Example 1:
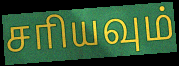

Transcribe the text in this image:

சரியவும்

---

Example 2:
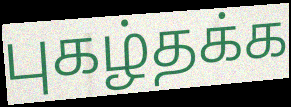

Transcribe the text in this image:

புகழ்தக்க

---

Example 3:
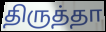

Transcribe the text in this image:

திருத்தா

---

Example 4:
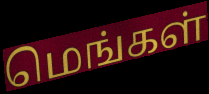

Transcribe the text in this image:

மெங்கள்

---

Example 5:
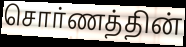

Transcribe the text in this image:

சொர்ணத்தின்